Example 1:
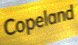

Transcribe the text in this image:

Copeland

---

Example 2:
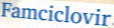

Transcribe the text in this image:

Famciclovir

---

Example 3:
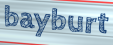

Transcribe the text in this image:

bayburt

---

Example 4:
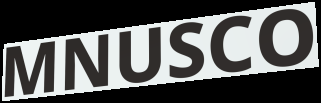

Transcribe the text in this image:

MNUSCO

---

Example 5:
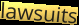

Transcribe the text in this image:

lawsuits